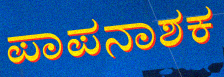
ಪಾಪನಾಶಕ